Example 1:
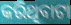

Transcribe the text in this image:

କରିଥିବାଟା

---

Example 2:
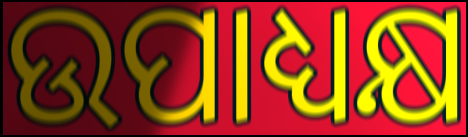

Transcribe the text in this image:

ଉପାଧ୍ୟକ୍ଷ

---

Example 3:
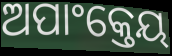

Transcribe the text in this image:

ଅପାଂକ୍ତେୟ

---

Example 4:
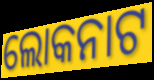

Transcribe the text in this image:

ଲୋକନାଟ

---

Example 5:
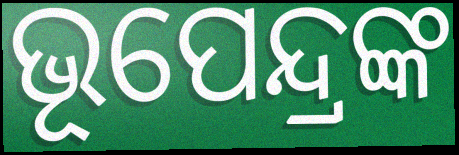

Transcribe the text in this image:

ଭୂପେନ୍ଦ୍ରଙ୍କ